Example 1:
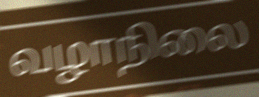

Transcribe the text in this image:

வழாநிலை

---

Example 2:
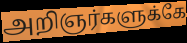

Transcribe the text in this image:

அறிஞர்களுக்கே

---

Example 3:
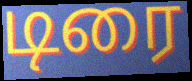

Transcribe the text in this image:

டிரை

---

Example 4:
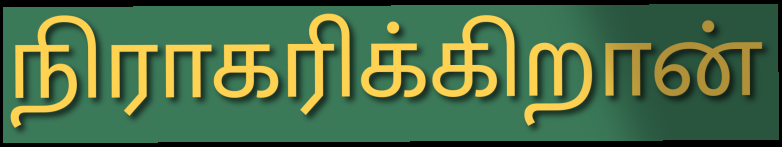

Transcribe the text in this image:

நிராகரிக்கிறான்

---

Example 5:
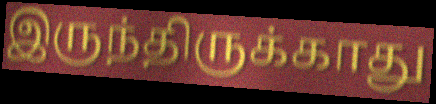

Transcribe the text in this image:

இருந்திருக்காது